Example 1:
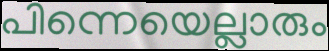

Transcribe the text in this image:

പിന്നെയെല്ലാരും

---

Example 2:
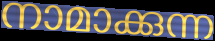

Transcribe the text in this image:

നാമാക്കുന്ന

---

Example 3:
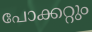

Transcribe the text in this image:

പോക്കറ്റും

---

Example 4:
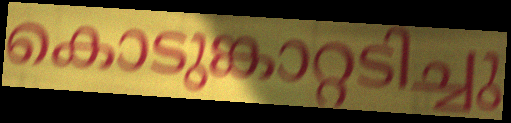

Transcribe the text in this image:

കൊടുങ്കാറ്റടിച്ചു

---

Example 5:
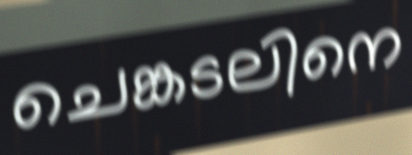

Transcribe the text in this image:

ചെങ്കടലിനെ